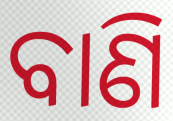
ବାଣି